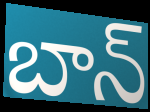
బాన్